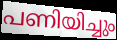
പണിയിച്ചും